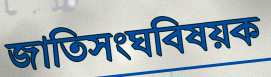
জাতিসংঘবিষয়ক